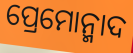
ପ୍ରେମୋନ୍ମାଦ